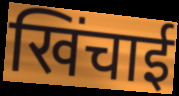
खिंचाई